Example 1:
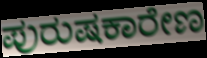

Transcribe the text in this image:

ಪುರುಷಕಾರೇಣ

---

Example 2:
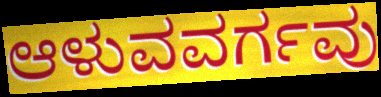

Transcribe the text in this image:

ಆಳುವವರ್ಗವು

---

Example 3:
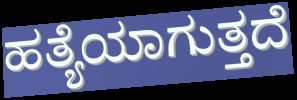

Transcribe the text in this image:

ಹತ್ಯೆಯಾಗುತ್ತದೆ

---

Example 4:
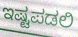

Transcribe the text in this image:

ಇಷ್ಟಪಡಲಿ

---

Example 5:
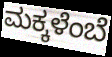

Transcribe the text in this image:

ಮಕ್ಕಳೆಂಬೆ